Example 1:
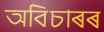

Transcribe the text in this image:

অবিচাৰৰ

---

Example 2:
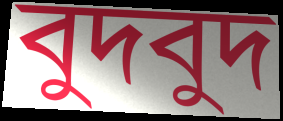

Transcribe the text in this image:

বুদবুদ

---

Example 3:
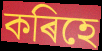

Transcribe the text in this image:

কৰিহে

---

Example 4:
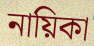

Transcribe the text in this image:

নায়িকা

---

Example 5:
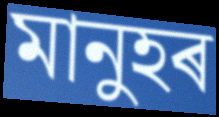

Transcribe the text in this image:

মানুহৰ